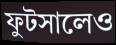
ফুটসালেও